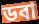
ডবা